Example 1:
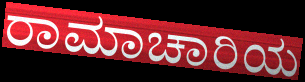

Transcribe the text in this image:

ರಾಮಾಚಾರಿಯ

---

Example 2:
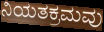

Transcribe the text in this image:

ನಿಯತಕ್ರಮವು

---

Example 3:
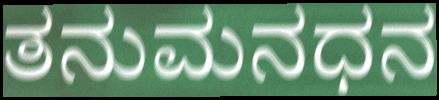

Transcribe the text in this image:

ತನುಮನಧನ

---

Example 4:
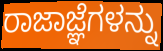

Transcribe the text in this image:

ರಾಜಾಜ್ಞೆಗಳನ್ನು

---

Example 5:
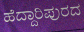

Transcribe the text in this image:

ಹೆದ್ದಾರಿಪುರದ